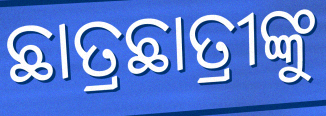
ଛାତ୍ରଛାତ୍ରୀଙ୍କୁ